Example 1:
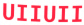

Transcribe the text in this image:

UIIUII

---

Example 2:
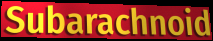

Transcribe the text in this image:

Subarachnoid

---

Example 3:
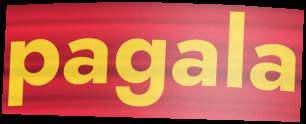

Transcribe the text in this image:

pagala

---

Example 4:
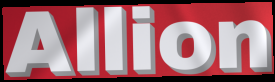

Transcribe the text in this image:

Allion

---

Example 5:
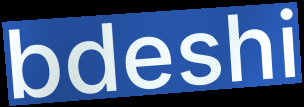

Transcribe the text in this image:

bdeshi